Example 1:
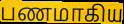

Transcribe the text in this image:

பணமாகிய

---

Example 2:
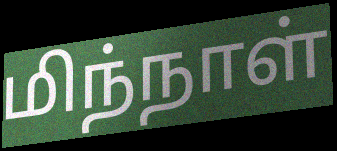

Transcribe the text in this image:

மிந்நாள்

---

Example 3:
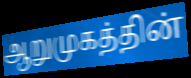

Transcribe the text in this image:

ஆறுமுகத்தின்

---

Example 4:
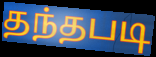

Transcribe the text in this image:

தந்தபடி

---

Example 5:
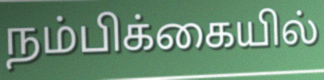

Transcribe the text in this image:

நம்பிக்கையில்